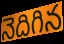
నెదిగిన